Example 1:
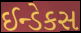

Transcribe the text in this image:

ઈન્ડેકસ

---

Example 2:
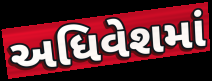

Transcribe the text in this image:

અધિવેશમાં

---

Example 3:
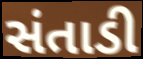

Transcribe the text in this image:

સંતાડી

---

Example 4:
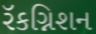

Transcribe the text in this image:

રૅકગ્નિશન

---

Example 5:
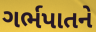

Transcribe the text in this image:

ગર્ભપાતને